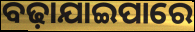
ବଢ଼ାଯାଇପାରେ